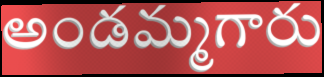
అండమ్మగారు